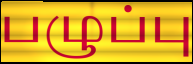
பழுப்பு